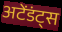
अटेंडंट्स